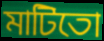
মাটিতো